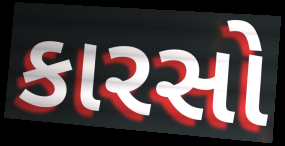
કારસો